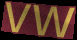
vw